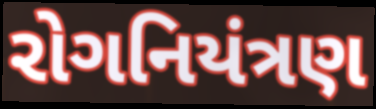
રોગનિયંત્રણ